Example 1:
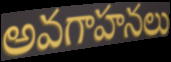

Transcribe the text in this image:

అవగాహనలు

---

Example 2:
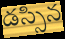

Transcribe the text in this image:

డస్సిన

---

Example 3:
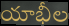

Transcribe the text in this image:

యాభీల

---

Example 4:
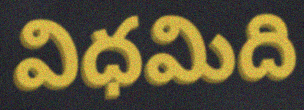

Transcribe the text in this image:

విధమిది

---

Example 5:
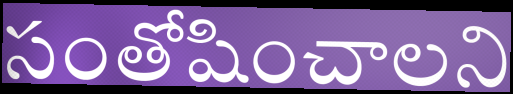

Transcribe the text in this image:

సంతోషించాలని